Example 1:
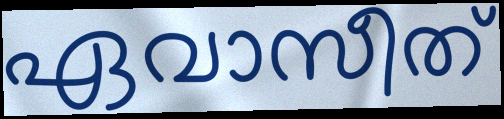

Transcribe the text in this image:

ഏവാസീത്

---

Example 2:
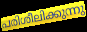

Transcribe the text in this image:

പരിശീലിക്കുന്നു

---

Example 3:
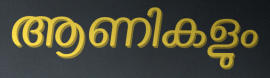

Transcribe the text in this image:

ആണികളും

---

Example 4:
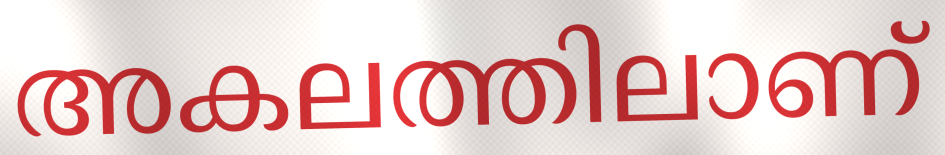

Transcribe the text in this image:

അകലത്തിലാണ്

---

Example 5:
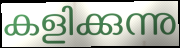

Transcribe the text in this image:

കളിക്കുന്നു